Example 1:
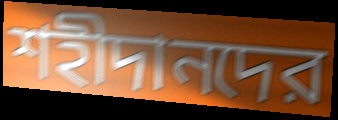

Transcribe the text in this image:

শহীদানদের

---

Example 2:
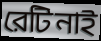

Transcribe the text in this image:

রেটিনাই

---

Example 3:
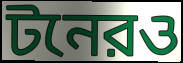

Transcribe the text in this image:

টনেরও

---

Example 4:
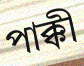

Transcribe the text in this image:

পাক্কী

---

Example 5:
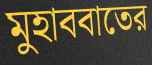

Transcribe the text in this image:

মুহাববাতের